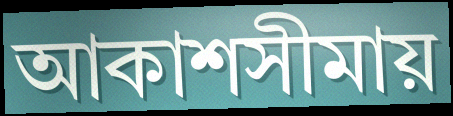
আকাশসীমায়